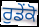
ਰੁਡੇਂਕੋ